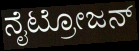
ನೈಟ್ರೋಜನ್